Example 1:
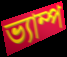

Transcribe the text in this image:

ভ্যাম্প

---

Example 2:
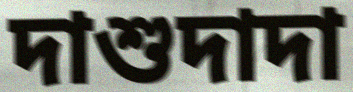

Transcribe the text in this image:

দাশুদাদা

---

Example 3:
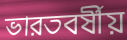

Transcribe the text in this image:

ভারতবর্ষীয়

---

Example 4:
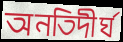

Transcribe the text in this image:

অনতিদীর্ঘ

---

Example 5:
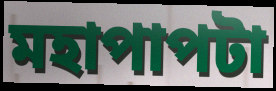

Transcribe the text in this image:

মহাপাপটা